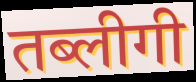
तब्‍लीगी